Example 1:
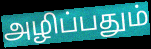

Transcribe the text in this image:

அழிப்பதும்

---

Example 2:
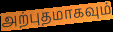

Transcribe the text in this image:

அற்புதமாகவும்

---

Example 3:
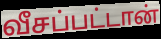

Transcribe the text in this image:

வீசப்பட்டான்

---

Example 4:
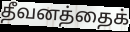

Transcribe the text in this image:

தீவனத்தைக்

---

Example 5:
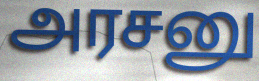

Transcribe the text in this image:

அரசனு